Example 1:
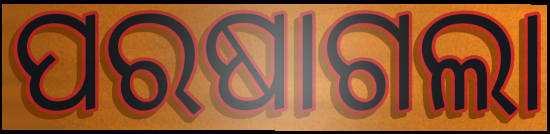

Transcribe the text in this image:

ପରଷାଗଲା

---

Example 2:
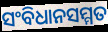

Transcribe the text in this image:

ସଂବିଧାନସମ୍ମତ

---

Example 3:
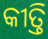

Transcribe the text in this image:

କୀତ୍ତି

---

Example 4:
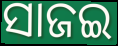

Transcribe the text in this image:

ସାଜଇ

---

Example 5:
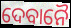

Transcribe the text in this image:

ଦେବାନୈ